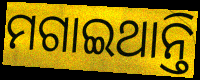
ମଗାଇଥାନ୍ତି